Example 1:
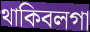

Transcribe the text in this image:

থাকিবলগা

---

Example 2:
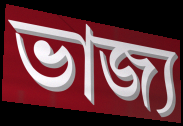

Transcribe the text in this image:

ভাজ্য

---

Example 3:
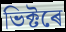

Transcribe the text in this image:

ভিক্টৰে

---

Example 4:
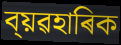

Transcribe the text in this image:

ব্য়ৱহাৰিক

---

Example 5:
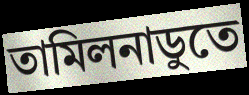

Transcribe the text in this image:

তামিলনাডুতে